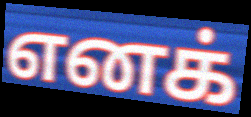
எனக்